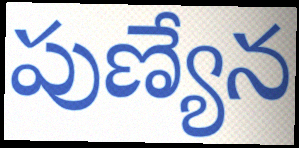
పుణ్యేన